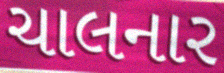
ચાલનાર